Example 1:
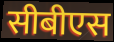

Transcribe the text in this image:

सीबीएस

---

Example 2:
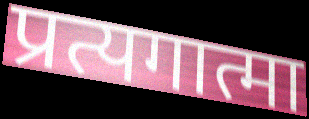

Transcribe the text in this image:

प्रत्यगात्मा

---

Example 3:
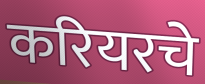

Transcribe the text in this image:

करियरचे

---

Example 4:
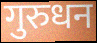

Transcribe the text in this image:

गुरुधन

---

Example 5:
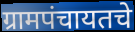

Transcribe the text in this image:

ग्रामपंचायतचे